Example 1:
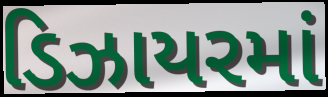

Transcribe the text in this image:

ડિઝાયરમાં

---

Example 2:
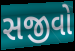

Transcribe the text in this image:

સજીવો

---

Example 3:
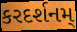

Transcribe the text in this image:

કરદર્શનમ્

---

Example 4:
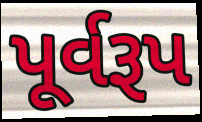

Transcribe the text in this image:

પૂર્વરૂપ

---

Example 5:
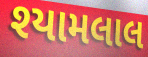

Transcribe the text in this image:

શ્યામલાલ